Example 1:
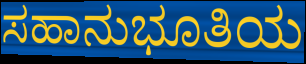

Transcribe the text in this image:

ಸಹಾನುಭೂತಿಯ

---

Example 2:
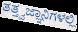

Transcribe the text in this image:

ತತ್ತ್ವಜ್ಞಾನಿಗಳಲ್ಲಿ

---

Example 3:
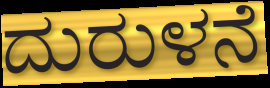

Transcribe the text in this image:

ದುರುಳನೆ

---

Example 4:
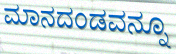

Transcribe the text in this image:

ಮಾನದಂಡವನ್ನೂ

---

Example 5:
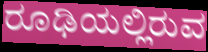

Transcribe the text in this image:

ರೂಢಿಯಲ್ಲಿರುವ